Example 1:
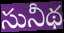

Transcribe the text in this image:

సునీథ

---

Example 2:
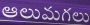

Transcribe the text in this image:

ఆలుమగలు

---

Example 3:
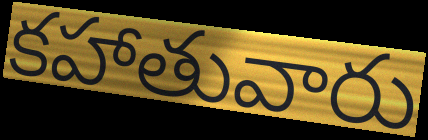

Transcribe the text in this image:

కహాతువారు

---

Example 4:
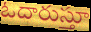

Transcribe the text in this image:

ఓదారుస్తూ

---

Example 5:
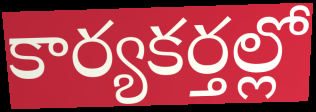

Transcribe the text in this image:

కార్యకర్తల్లో